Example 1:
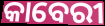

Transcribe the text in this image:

କାବେରୀ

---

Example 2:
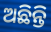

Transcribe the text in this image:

ଅଛିନ୍ତି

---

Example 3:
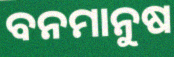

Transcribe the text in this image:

ବନମାନୁଷ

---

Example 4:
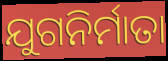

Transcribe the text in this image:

ଯୁଗନିର୍ମାତା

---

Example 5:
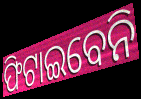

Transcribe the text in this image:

ଫିଟାଇବେନି